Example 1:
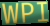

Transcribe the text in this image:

WPI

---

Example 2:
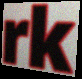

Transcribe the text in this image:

rk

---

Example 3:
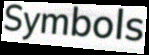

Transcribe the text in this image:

Symbols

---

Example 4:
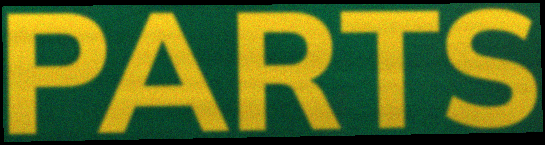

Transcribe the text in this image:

PARTS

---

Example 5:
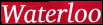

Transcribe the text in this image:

Waterloo